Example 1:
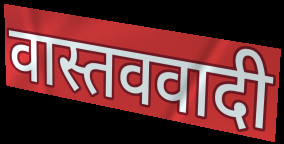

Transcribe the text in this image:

वास्तववादी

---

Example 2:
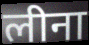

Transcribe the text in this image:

लीना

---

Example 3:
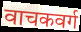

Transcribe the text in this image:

वाचकवर्ग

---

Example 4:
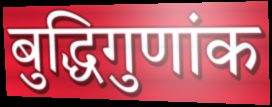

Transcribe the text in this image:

बुद्धिगुणांक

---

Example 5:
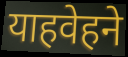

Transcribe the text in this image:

याहवेहने